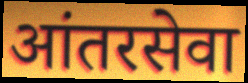
आंतरसेवा